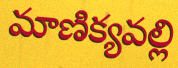
మాణిక్యవల్లి